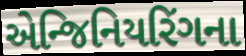
એન્જિનિયરિંગના